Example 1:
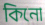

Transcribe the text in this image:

কিনো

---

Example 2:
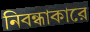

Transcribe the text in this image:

নিবন্ধাকারে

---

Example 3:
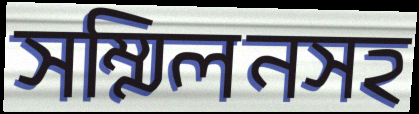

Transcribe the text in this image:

সম্মিলনসহ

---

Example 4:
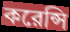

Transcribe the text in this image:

করেন্সি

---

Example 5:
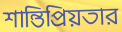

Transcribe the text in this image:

শান্তিপ্রিয়তার